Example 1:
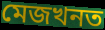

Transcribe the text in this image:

মেজখনত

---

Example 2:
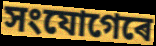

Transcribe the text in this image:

সংযোগেৰে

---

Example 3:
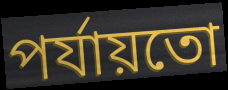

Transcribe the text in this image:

পৰ্যায়তো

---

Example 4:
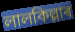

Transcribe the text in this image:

লালকিল্লাৰ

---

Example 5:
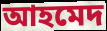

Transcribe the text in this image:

আহমেদ